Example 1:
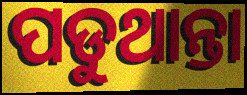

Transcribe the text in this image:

ପଡୁଥାନ୍ତା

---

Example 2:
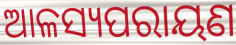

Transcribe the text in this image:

ଆଳସ୍ୟପରାୟଣ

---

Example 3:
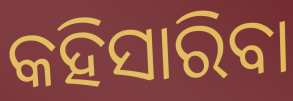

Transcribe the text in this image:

କହିସାରିବା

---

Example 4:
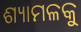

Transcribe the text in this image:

ଶ୍ୟାମଳକୁ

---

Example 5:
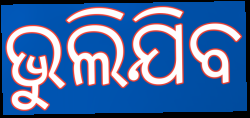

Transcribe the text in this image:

ଭୁଲିଯିବ